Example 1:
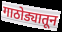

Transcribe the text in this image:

गाठोड्यातून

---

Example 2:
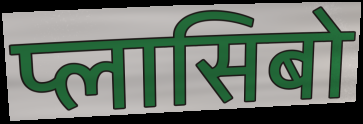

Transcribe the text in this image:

प्लासिबो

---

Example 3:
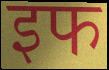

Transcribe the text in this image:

इफ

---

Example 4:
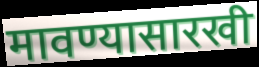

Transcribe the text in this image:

मावण्यासारखी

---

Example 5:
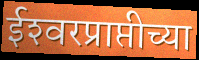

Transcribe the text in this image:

ईश्वरप्राप्तीच्या